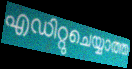
എഡിറ്റുചെയ്യാത്ത